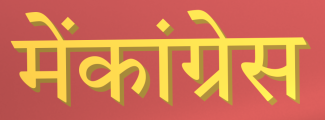
मेंकांग्रेस